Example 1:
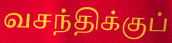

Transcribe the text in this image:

வசந்திக்குப்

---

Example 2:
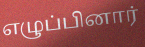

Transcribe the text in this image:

எழுப்பினார்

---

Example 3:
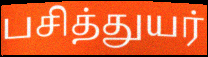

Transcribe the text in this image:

பசித்துயர்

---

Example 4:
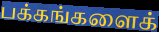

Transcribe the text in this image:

பக்கங்களைக்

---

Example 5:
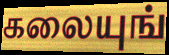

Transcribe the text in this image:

கலையுங்